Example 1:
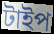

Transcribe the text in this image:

টাইপ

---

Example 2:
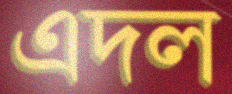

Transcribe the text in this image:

এদল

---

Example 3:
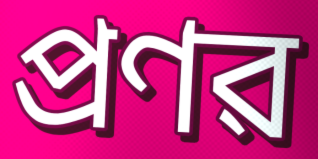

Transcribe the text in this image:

প্ৰণৱ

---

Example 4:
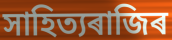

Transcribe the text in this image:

সাহিত্যৰাজিৰ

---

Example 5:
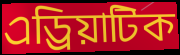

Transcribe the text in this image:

এড্ৰিয়াটিক